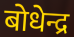
बोधेन्द्र